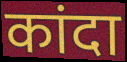
कांदा